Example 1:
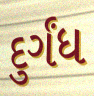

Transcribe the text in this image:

દુર્ગંધ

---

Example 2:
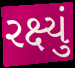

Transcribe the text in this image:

રક્ષ્યું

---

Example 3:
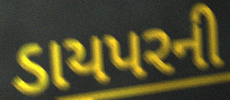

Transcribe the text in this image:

ડાયપરની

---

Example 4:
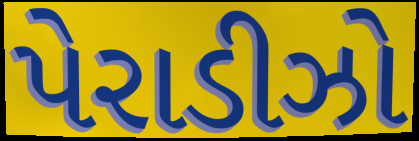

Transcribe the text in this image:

પેરાડીઝો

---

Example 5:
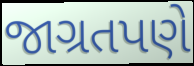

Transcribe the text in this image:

જાગ્રતપણે